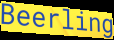
Beerling